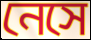
নেসে